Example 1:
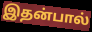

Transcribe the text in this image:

இதன்பால்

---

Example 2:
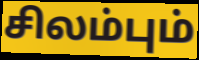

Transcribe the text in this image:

சிலம்பும்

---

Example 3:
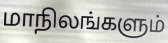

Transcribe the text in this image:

மாநிலங்களும்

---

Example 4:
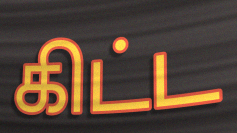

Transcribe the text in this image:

கிட்ட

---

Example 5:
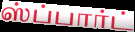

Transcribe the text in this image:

ஸ்ப்பார்ட்